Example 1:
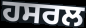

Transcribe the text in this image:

ਹਸਰਲ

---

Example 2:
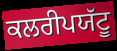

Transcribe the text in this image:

ਕਲਰੀਪਯੱਟੂ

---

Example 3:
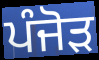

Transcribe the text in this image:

ਪੰਜੋੜ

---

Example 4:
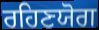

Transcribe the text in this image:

ਰਹਿਣਯੋਗ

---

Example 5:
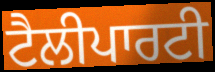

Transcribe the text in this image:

ਟੈਲੀਪਾਰਟੀ